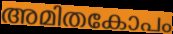
അമിതകോപം